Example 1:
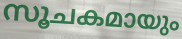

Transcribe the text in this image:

സൂചകമായും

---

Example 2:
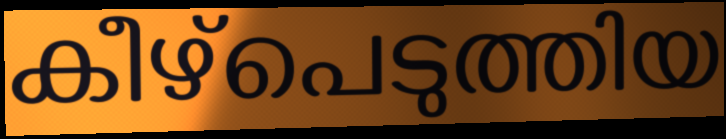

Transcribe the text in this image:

കീഴ്പെടുത്തിയ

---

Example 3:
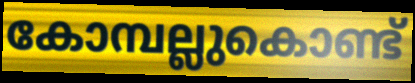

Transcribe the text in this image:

കോമ്പല്ലുകൊണ്ട്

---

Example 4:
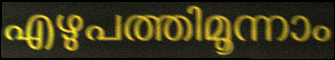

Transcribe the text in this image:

എഴുപത്തിമൂന്നാം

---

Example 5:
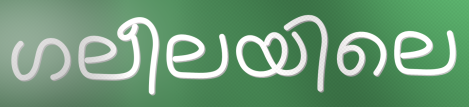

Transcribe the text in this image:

ഗലീലയിലെ